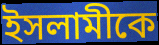
ইসলামীকে